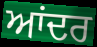
ਆਂਦਰ